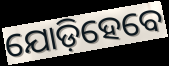
ଯୋଡ଼ିହେବେ